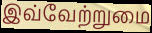
இவ்வேற்றுமை